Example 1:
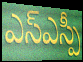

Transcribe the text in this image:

ఎస్ఎస్పీ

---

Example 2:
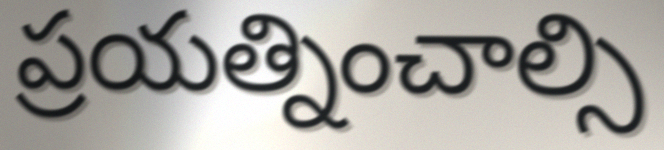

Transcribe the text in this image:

ప్రయత్నించాల్సి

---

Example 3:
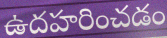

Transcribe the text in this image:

ఉదహరించడం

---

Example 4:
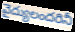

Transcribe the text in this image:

వైద్యులందరినీ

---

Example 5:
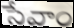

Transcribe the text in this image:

సేవాం